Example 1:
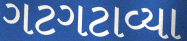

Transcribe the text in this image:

ગટગટાવ્યા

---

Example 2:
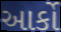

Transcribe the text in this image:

આર્કો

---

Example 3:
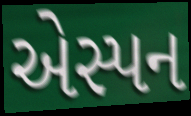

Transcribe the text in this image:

એસ્પન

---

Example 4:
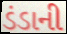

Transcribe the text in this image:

ડંડાની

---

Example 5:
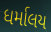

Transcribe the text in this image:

ધર્માલય